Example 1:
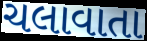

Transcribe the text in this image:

ચલાવાતા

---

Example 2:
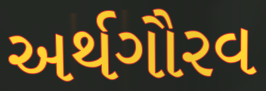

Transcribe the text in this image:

અર્થગૌરવ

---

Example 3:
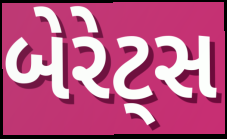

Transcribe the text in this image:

બેરેટ્સ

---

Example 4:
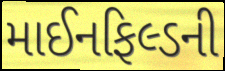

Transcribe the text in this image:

માઈનફિલ્ડની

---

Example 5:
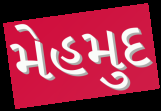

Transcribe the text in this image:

મેહમુદ